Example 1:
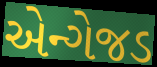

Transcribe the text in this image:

એન્ગેજડ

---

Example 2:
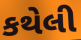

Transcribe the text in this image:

કથેલી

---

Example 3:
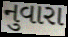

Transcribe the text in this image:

નુવારા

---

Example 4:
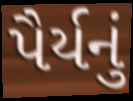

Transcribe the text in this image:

પૈર્યનું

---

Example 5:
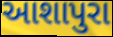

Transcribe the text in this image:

આશાપુરા